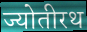
ज्योतीरथ